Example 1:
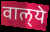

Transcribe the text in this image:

वाल्ये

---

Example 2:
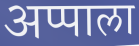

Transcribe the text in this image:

अप्पाला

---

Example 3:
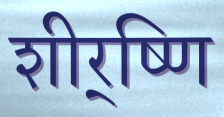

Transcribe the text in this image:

शीर्ष्णि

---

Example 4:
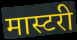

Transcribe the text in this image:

मास्टरी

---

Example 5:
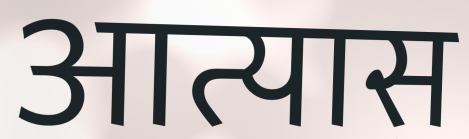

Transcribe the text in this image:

आत्यास